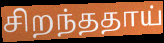
சிறந்ததாய்